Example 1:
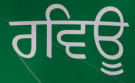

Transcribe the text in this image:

ਰਵਿਊ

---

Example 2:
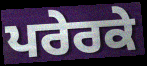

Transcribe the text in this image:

ਪਰੇਰਕੇ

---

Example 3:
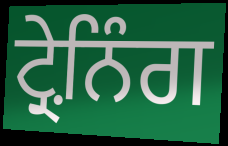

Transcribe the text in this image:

ਟ੍ਰ਼ੇਨਿੰਗ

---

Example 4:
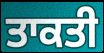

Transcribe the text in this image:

ਤਾਕਤੀ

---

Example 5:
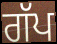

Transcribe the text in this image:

ਗੱਪ